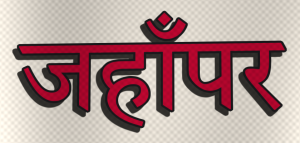
जहाँपर